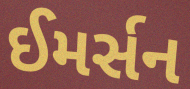
ઈમર્સન